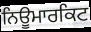
ਨਿਊਮਾਰਕਿਟ